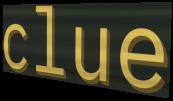
clue